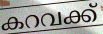
കറവക്ക്